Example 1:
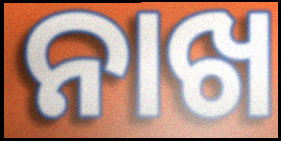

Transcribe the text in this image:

ନାଖ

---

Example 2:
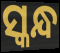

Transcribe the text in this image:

ସ୍କନ୍ଧ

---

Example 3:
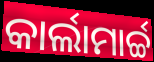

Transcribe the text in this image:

କାର୍ଲାମାର୍ଚ୍ଚ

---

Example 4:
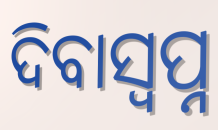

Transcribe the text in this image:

ଦିବାସ୍ଵପ୍ନ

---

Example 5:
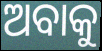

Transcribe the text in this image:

ଅବାକୁ